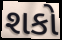
શકો